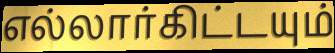
எல்லார்கிட்டயும்